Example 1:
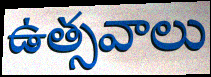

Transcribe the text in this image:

ఉత్సవాలు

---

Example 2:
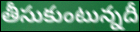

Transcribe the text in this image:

తీసుకుంటున్నదీ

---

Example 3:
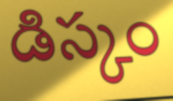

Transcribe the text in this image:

డిస్కం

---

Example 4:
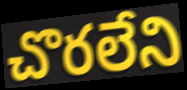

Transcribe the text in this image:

చొరలేని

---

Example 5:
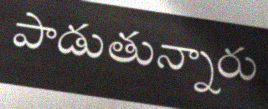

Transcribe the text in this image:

పాడుతున్నారు